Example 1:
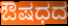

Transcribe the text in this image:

ಔಷಧದ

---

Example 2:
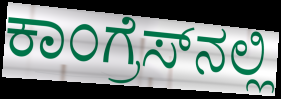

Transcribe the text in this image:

ಕಾಂಗ್ರೆಸ್‍ನಲ್ಲಿ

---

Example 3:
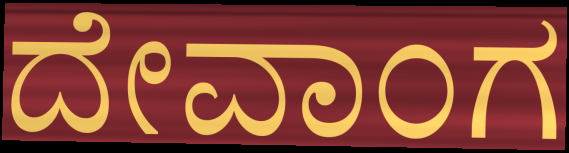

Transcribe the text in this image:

ದೇವಾಂಗ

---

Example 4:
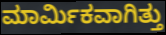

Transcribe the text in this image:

ಮಾರ್ಮಿಕವಾಗಿತ್ತು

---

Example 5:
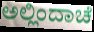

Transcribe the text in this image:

ಅಲ್ಲಿಂದಾಚೆ